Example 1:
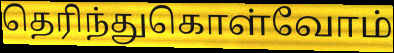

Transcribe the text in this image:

தெரிந்துகொள்வோம்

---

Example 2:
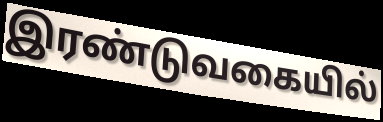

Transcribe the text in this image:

இரண்டுவகையில்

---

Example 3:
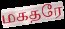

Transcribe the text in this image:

மகதரே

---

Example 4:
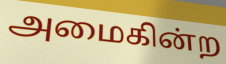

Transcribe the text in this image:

அமைகின்ற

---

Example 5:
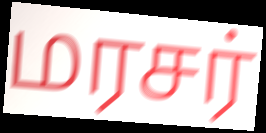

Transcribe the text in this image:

மரசர்